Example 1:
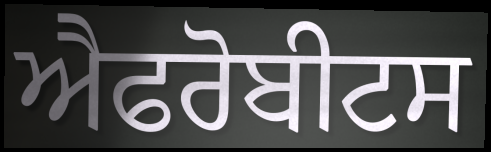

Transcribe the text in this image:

ਐਫਰੋਬੀਟਸ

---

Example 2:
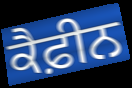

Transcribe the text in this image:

ਕੈਫ਼ੀਨ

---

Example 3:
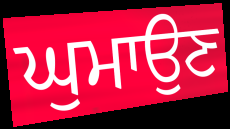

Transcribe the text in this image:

ਘੁਮਾਉਣ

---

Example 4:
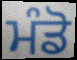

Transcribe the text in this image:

ਮੰਡੋ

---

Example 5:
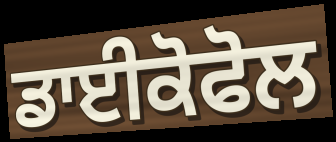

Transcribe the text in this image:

ਡਾਈਕੋਫੋਲ